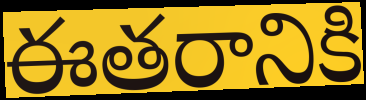
ఈతరానికి